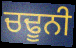
ਚਢੂਨੀ